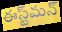
ఈస్ట్‌మన్